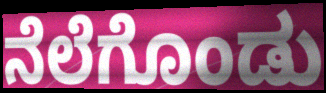
ನೆಲೆಗೊಂಡು